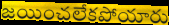
జయించలేకపోయారు